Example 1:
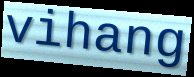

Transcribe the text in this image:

vihang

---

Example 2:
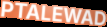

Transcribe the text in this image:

PTALEWAD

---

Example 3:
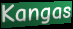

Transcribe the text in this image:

Kangas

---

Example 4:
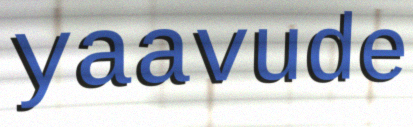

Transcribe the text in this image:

yaavude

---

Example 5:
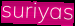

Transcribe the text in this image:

suriyas